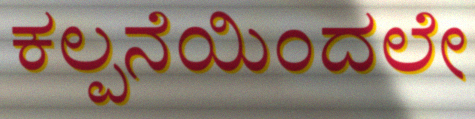
ಕಲ್ಪನೆಯಿಂದಲೇ